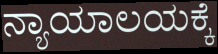
ನ್ಯಾಯಾಲಯಕ್ಕೆ